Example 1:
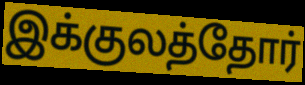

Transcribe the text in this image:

இக்குலத்தோர்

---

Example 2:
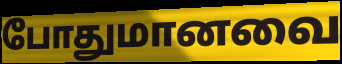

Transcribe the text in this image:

போதுமானவை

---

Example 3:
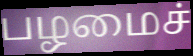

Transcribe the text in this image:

பழமைச்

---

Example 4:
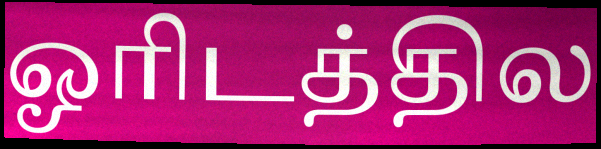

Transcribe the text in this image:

ஓரிடத்தில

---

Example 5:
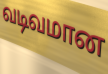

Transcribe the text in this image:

வடிவமான